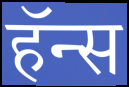
हॅन्स